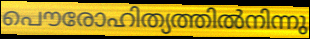
പൌരോഹിത്യത്തിൽനിന്നു